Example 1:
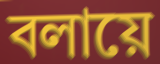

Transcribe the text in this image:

বলায়ে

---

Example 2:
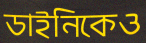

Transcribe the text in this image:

ডাইনিকেও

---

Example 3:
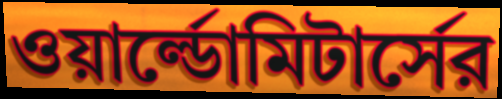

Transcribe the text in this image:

ওয়ার্ল্ডোমিটার্সের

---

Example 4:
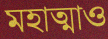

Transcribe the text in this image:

মহাত্মাও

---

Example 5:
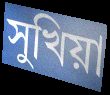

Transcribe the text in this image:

সুখিয়া